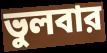
ভুলবার